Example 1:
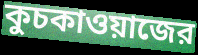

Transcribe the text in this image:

কুচকাওয়াজের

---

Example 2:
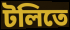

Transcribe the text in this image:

টলিতে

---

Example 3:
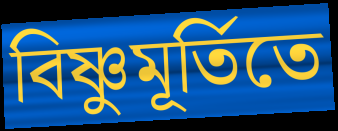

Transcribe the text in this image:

বিষ্ণুমূর্তিতে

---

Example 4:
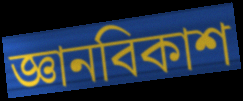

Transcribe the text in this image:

জ্ঞানবিকাশ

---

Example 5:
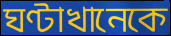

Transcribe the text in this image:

ঘণ্টাখানেকে